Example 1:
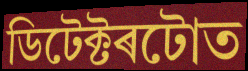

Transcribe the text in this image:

ডিটেক্টৰটোত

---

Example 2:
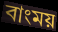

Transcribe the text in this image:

বাংময়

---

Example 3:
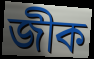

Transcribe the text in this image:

জীক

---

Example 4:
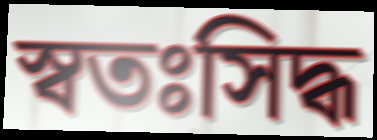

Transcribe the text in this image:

স্বতঃসিদ্ধ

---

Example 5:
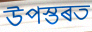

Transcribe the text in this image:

উপস্তৰত